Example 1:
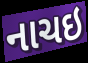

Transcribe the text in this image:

નાચઇ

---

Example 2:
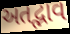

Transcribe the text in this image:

અતદ્ભાવ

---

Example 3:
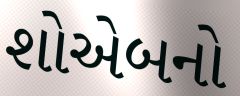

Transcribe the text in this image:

શોએબનો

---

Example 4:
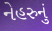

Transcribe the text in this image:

નેહરુનું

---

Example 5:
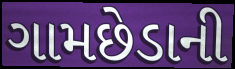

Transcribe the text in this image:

ગામછેડાની